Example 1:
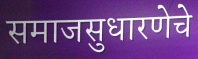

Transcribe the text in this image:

समाजसुधारणेचे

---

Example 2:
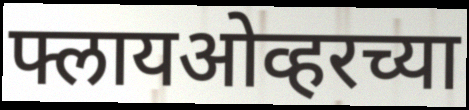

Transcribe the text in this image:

फ्लायओव्हरच्या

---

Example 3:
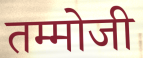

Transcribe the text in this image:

तम्मोजी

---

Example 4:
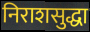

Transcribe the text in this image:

निराशसुद्धा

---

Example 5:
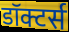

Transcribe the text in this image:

डॉक्टर्स